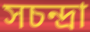
সচন্দ্রা